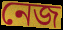
নেজ